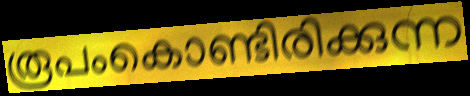
രൂപംകൊണ്ടിരിക്കുന്ന